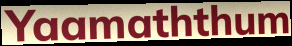
Yaamaththum